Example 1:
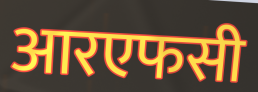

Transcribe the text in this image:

आरएफसी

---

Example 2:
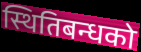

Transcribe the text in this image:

स्थितिबन्धको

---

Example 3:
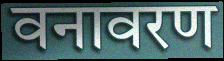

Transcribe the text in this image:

वनावरण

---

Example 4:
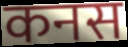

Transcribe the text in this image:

कनस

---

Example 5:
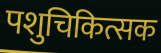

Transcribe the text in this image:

पशुचिकित्सक